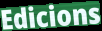
Edicions